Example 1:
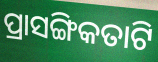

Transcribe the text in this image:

ପ୍ରାସଙ୍ଗିକତାଟି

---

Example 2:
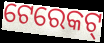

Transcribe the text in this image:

ଟେରେକଟ୍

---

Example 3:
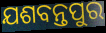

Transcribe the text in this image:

ଯଶବନ୍ତପୁର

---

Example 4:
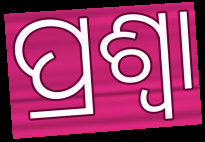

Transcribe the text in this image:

ପ୍ରଶ୍ଵା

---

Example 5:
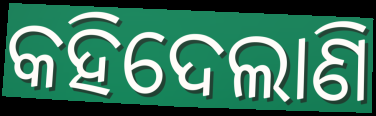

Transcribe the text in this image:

କହିଦେଲାଣି